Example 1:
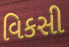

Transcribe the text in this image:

વિકસી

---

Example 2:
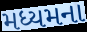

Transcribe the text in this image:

મધ્યમના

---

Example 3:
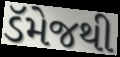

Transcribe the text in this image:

ડૅમેજથી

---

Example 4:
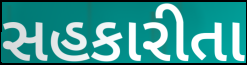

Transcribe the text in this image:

સહકારીતા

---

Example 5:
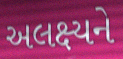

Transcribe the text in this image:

અલક્ષ્યને